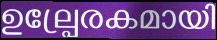
ഉല്പ്രേരകമായി